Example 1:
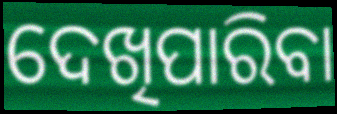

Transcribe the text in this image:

ଦେଖିପାରିବା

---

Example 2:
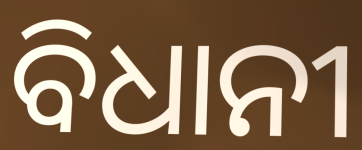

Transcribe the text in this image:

ବିଧାନୀ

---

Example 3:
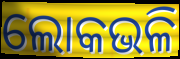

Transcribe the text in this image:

ଲୋକଭଳି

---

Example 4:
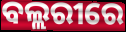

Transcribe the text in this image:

ବଲ୍ଲରୀରେ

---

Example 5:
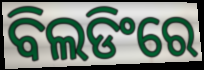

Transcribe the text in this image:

ବିଲଡିଂରେ